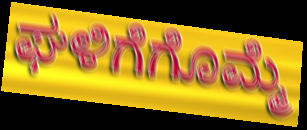
ಘಳಿಗೆಗೊಮ್ಮೆ